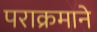
पराक्रमाने